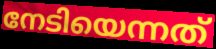
നേടിയെന്നത്